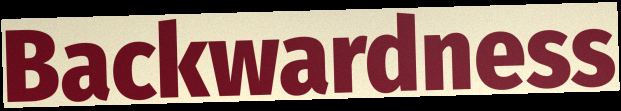
Backwardness